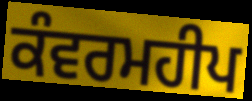
ਕੰਵਰਮਹੀਪ